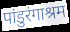
पांडुरंगाश्रम